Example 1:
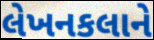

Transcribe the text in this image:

લેખનકલાને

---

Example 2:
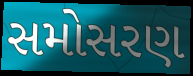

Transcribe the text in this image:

સમોસરણ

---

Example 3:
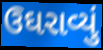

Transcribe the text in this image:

ઉઘરાવ્યું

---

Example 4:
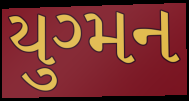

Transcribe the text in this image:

યુગ્મન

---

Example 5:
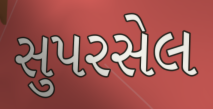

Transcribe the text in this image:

સુપરસેલ